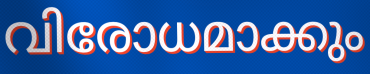
വിരോധമാക്കും